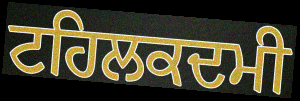
ਟਹਿਲਕਦਮੀ